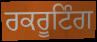
ਰਕਰੂਟਿੰਗ